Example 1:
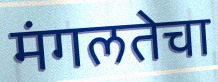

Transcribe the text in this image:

मंगलतेचा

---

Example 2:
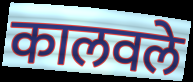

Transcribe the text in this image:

कालवले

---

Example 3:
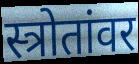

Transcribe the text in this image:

स्त्रोतांवर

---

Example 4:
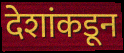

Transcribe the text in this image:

देशांकडून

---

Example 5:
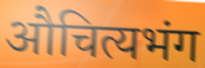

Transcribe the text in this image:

औचित्यभंग